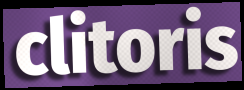
clitoris